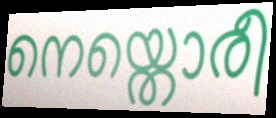
നെയ്തൊരീ